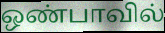
ஒண்பாவில்